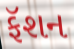
ફૅશન